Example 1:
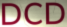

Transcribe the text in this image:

DCD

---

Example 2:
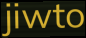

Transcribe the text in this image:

jiwto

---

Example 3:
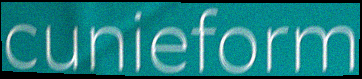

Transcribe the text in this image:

cunieform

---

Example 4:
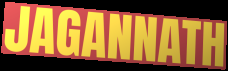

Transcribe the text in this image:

JAGANNATH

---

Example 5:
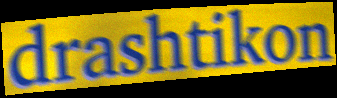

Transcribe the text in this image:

drashtikon